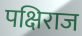
पक्षिराज